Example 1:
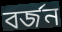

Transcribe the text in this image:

বৰ্জন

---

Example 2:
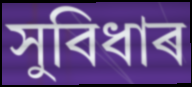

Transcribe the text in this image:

সুবিধাৰ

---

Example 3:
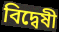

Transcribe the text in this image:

বিদ্বেষী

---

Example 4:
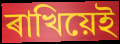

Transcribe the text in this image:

ৰাখিয়েই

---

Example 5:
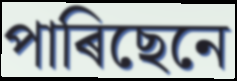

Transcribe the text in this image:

পাৰিছেনে